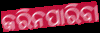
କରିନପାରିବା